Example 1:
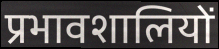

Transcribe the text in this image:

प्रभावशालियों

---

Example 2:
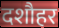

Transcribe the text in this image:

दशौहर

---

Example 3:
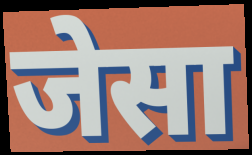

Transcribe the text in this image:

जेसा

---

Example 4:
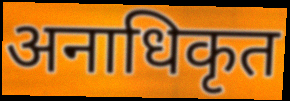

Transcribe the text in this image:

अनाधिकृत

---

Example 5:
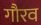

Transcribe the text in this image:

गौरव